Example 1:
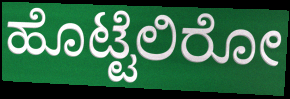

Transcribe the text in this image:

ಹೊಟ್ಟೆಲಿರೋ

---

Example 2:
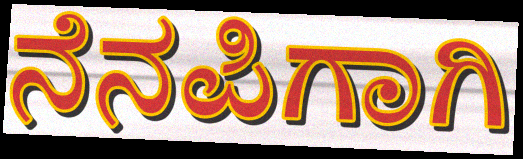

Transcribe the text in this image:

ನೆನಪಿಗಾಗಿ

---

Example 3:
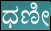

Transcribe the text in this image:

ಧಣೀ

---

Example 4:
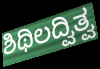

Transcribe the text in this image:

ಶಿಥಿಲದ್ವಿತ್ವ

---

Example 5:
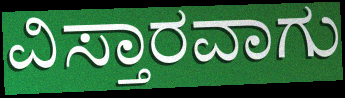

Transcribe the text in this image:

ವಿಸ್ತಾರವಾಗು